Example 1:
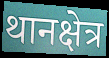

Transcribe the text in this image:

थानक्षेत्र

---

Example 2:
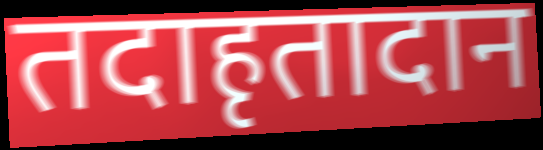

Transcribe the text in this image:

तदाहृतादान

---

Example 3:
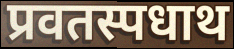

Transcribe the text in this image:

प्रवतस्पधाथ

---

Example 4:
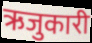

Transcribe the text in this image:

ऋजुकारी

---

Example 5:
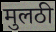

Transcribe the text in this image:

मुलठी